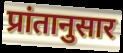
प्रांतानुसार